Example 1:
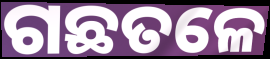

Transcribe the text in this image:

ଗଛତଳେ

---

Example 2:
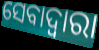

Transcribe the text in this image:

ସେବାଦ୍ବାରା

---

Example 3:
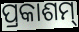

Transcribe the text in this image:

ପ୍ରକାଶମ୍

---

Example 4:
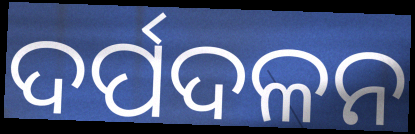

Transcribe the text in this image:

ଦର୍ପଦଳନ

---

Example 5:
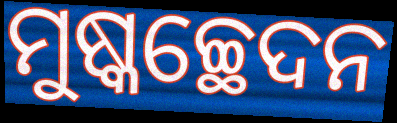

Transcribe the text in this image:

ମୁଷ୍କଚ୍ଛେଦନ